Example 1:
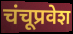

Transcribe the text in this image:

चंचूप्रवेश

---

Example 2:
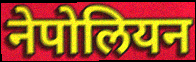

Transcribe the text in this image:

नेपोलियन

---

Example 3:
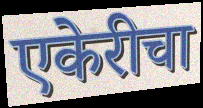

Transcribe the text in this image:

एकेरीचा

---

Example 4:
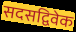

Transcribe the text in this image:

सदसद्विवेक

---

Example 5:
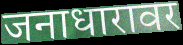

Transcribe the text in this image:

जनाधारावर